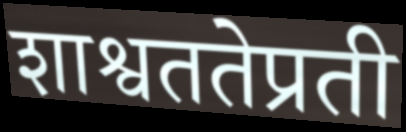
शाश्वततेप्रती